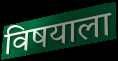
विषयाला